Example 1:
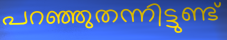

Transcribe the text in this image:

പറഞ്ഞുതന്നിട്ടുണ്ട്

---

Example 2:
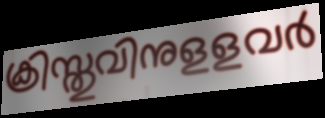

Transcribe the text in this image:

ക്രിസ്തുവിനുളളവർ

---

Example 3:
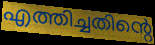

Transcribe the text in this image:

എത്തിച്ചതിന്റെ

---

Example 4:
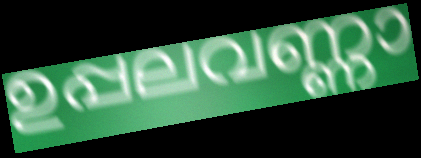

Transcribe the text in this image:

ഉപ്പലവണ്ണാ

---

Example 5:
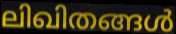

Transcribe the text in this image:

ലിഖിതങ്ങൾ